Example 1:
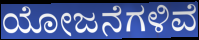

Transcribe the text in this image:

ಯೋಜನೆಗಳಿವೆ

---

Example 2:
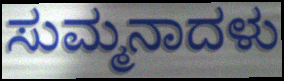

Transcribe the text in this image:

ಸುಮ್ಮನಾದಳು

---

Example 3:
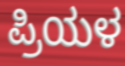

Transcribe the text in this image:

ಪ್ರಿಯಳ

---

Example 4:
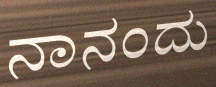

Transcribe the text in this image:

ನಾನಂದು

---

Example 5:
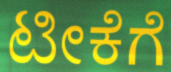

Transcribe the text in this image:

ಟೀಕೆಗೆ